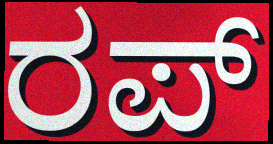
ರಪ್